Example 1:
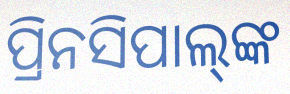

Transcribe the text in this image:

ପ୍ରିନସିପାଲ୍‍ଙ୍କ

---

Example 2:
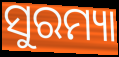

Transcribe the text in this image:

ସୁରମ୍ୟା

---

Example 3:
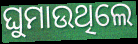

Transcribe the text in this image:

ଘୁମାଉଥିଲେ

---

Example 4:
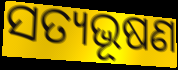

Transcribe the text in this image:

ସତ୍ୟଭୂଷଣ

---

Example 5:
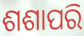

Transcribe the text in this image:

ଶଶାପରି